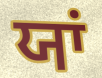
ਯਾਂ